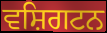
ਵਸ਼ਿਗਟਨ